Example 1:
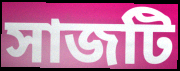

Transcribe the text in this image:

সাজটি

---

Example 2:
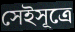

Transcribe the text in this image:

সেইসূত্রে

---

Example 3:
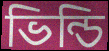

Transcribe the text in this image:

ভিন্ডি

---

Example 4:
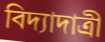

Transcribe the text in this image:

বিদ্যাদাত্রী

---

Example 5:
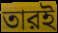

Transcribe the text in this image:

তারই